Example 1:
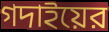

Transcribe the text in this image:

গদাইয়ের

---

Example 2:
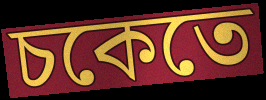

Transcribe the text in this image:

চকেতে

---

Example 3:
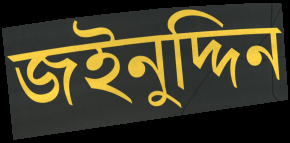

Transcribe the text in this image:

জইনুদ্দিন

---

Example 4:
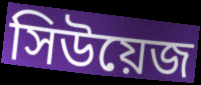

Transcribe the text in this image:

সিউয়েজ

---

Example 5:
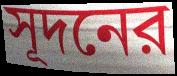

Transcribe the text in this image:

সূদনের